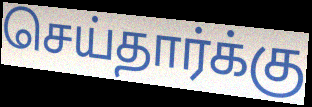
செய்தார்க்கு